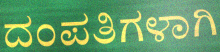
ದಂಪತಿಗಳಾಗಿ